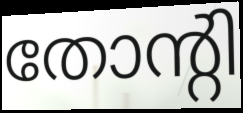
തോന്റി